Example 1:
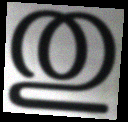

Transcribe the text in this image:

തു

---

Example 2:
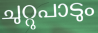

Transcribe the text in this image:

ചുറ്റുപാടും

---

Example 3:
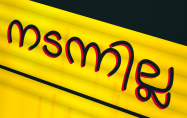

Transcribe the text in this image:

നടന്നില്ല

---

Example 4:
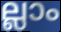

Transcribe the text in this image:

ല്ലാം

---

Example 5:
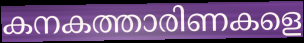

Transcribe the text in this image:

കനകത്താരിണകളെ